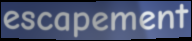
escapement